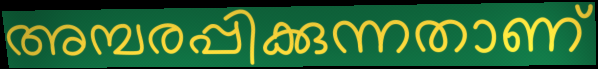
അമ്പരപ്പിക്കുന്നതാണ്